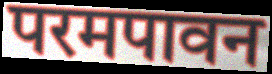
परमपावन